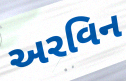
અરવિન